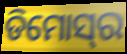
ଡିମୋସ୍‌ର